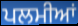
ਪਲਮੀਆਂ